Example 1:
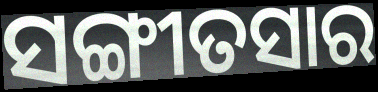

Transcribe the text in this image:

ସଙ୍ଗୀତସାର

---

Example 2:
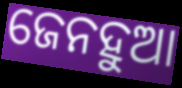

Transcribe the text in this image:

ଜେନହୁଆ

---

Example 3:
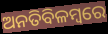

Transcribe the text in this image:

ଅନତିବିଳମ୍ବରେ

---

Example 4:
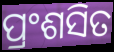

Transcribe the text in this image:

ପ୍ରଂଶସିତ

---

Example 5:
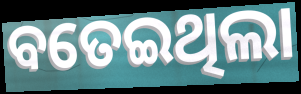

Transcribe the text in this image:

ବତେଇଥିଲା